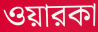
ওয়ারকা